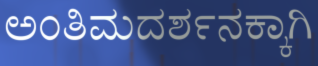
ಅಂತಿಮದರ್ಶನಕ್ಕಾಗಿ